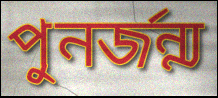
পুনৰ্জন্ম